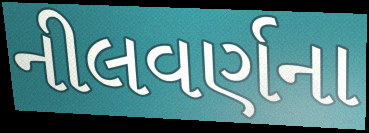
નીલવર્ણના